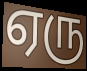
ஏரு